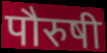
पौरुषी